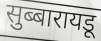
सुब्बारायडू